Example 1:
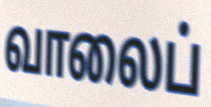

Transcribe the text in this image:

வாலைப்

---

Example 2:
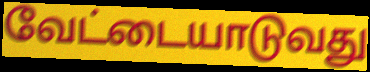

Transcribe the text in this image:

வேட்டையாடுவது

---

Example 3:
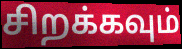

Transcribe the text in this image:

சிறக்கவும்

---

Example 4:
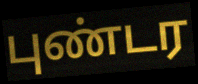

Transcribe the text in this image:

புண்டர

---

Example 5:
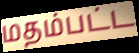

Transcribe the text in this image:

மதம்பட்ட